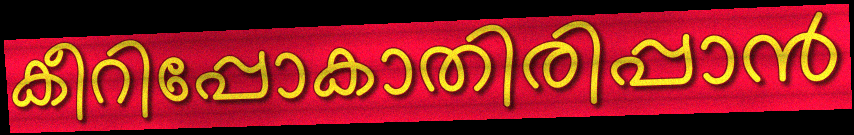
കീറിപ്പോകാതിരിപ്പാൻ